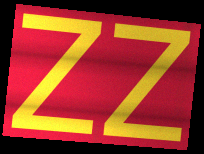
ZZ